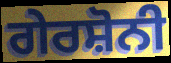
ਗੇਰਸ਼ੋਨੀ